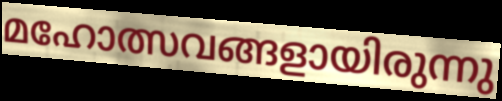
മഹോത്സവങ്ങളായിരുന്നു